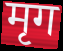
मृग